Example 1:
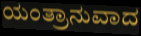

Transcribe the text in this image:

ಯಂತ್ರಾನುವಾದ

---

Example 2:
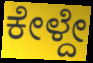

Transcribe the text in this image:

ಕೇಳ್ದೇ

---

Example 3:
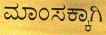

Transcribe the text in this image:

ಮಾಂಸಕ್ಕಾಗಿ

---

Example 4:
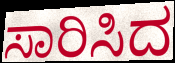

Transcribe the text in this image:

ಸಾರಿಸಿದ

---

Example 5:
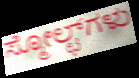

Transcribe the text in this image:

ಸ್ಮೋಲ್ಟ್‌ಗಳು